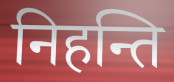
निहन्ति